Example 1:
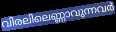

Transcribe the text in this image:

വിരലിലെണ്ണാവുന്നവർ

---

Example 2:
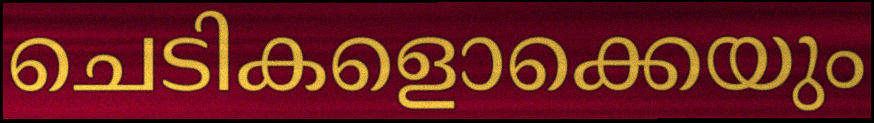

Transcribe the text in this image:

ചെടികളൊക്കെയും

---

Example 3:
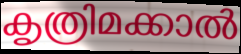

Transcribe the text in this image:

കൃത്രിമക്കാൽ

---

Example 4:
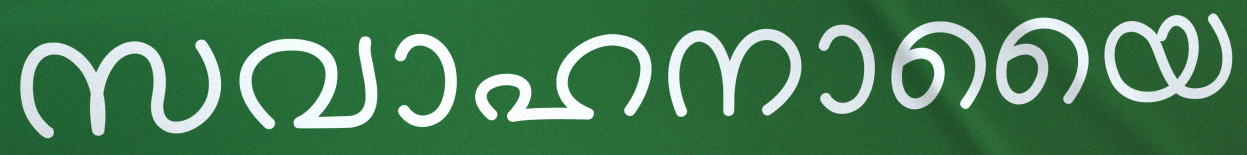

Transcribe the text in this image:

സവാഹനായൈ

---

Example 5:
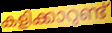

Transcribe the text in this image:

കളിക്കാറുണ്ട്